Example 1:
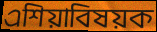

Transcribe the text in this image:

এশিয়াবিষয়ক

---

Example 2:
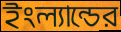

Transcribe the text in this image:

ইংল্যান্ডের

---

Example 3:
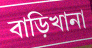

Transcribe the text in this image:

বাড়িখানা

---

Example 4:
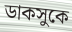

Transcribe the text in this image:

ডাকসুকে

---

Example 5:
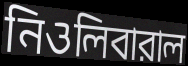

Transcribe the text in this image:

নিওলিবারাল